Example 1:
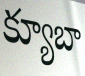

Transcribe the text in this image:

క్యూబా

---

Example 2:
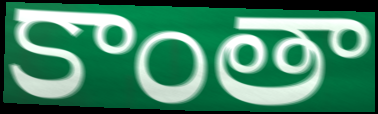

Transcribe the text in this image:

కాంతా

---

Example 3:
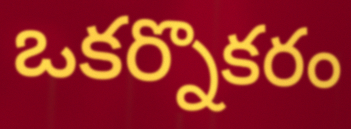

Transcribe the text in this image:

ఒకర్నొకరం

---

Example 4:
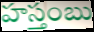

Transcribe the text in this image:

హస్తంబు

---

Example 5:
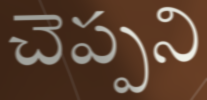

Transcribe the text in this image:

చెప్పని